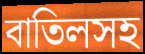
বাতিলসহ